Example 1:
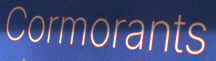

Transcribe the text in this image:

Cormorants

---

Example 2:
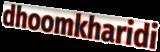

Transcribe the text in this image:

dhoomkharidi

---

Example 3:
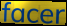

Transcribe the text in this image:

facer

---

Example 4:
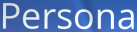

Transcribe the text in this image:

Persona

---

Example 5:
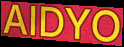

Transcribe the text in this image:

AIDYO